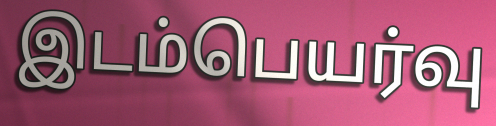
இடம்பெயர்வு